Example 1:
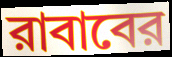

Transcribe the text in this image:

রাবাবের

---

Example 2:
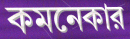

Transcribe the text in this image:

কমনেকার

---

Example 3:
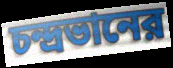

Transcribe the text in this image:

চন্দ্রভানের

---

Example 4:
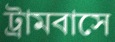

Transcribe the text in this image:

ট্রামবাসে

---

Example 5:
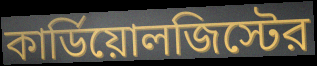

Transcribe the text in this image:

কার্ডিয়োলজিস্টের